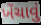
ખેંચાવું